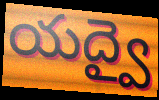
యద్వై